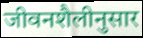
जीवनशैलीनुसार